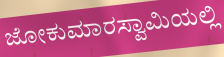
ಜೋಕುಮಾರಸ್ವಾಮಿಯಲ್ಲಿ